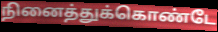
நினைத்துக்கொண்டே